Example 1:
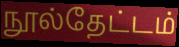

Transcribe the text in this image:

நூல்தேட்டம்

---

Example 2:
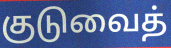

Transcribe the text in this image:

குடுவைத்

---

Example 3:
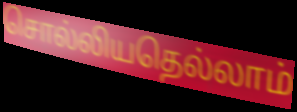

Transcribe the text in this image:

சொல்லியதெல்லாம்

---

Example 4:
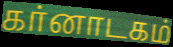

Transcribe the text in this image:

கர்னாடகம்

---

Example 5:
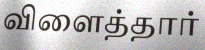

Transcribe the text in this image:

விளைத்தார்